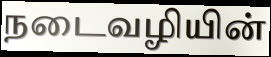
நடைவழியின்